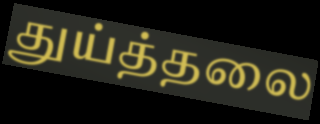
துய்த்தலை